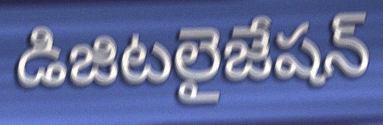
డిజిటలైజేషన్